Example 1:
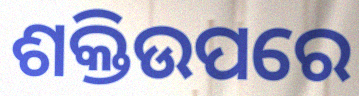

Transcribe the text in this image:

ଶକ୍ତିଉପରେ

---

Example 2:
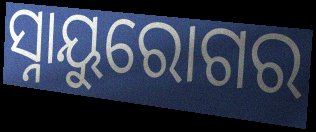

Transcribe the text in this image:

ସ୍ନାୟୁରୋଗର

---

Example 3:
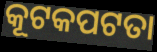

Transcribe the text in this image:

କୂଟକପଟତା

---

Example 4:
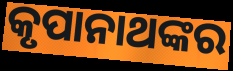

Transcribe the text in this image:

କୃପାନାଥଙ୍କର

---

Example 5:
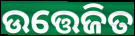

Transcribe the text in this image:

ଉତ୍ତେଜିତ